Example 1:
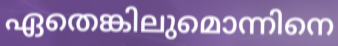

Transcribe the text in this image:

ഏതെങ്കിലുമൊന്നിനെ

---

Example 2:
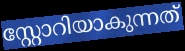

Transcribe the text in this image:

സ്റ്റോറിയാകുന്നത്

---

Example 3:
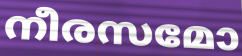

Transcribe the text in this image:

നീരസമോ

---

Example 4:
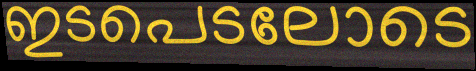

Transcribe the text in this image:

ഇടപെടലോടെ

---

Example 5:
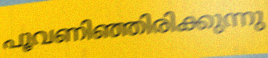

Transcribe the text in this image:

പൂവണിഞ്ഞിരിക്കുന്നു